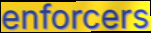
enforcers